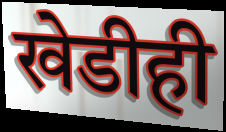
खेडीही